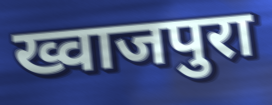
ख्वाजपुरा